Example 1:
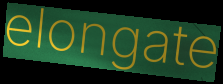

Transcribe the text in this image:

elongate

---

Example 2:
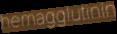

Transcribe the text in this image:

hemagglutinin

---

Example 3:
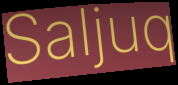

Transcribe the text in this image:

Saljuq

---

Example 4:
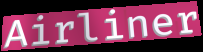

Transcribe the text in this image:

Airliner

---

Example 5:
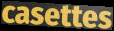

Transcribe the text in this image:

casettes